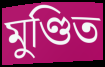
মুণ্ডিত